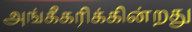
அங்கீகரிக்கின்றது